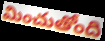
మించుతోంది